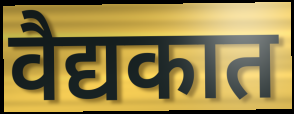
वैद्यकात